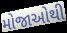
મોજાઓથી